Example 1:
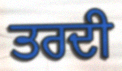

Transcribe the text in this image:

ਤਰਦੀ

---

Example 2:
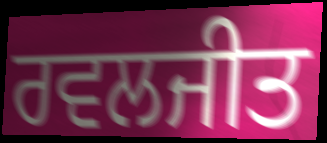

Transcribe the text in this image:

ਰਵਲਜੀਤ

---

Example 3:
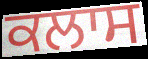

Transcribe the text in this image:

ਕਲਾਸ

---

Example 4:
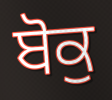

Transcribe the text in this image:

ਬੋਕੁ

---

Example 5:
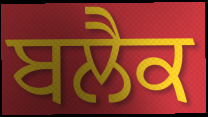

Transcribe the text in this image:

ਬਲੈਕ